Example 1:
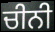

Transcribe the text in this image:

ਚੀਨੀ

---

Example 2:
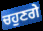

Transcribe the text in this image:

ਚਹੁਣਗੇ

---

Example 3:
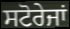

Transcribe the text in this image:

ਸਟੋਰੇਜਾਂ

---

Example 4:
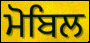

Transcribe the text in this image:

ਮੋਬਿਲ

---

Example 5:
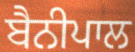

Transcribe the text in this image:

ਬੈਨੀਪਾਲ